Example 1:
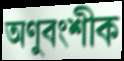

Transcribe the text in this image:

অণুবংশীক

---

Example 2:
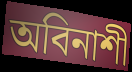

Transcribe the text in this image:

অবিনাশী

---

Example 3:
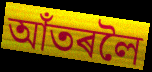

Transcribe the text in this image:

আঁতৰলৈ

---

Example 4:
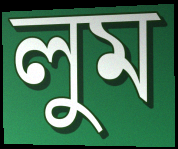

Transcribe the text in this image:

লুম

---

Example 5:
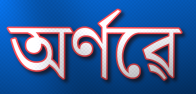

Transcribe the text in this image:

অৰ্ণৱে